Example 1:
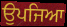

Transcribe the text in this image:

ਉਪਜਿਆ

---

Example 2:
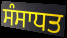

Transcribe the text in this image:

ਸੰਸਾਧਤ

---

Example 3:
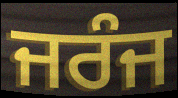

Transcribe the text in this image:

ਜਰੰਜ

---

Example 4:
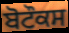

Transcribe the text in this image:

ਬੋਟੌਕਸ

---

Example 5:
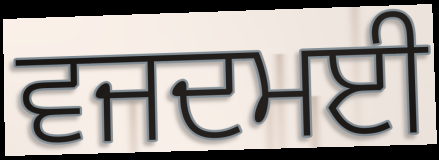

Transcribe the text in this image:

ਵਜਦਮਈ